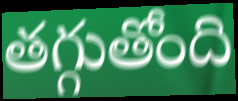
తగ్గుతోంది